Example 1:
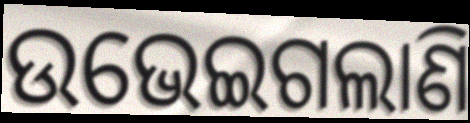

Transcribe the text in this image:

ଉଭେଇଗଲାଣି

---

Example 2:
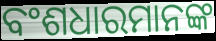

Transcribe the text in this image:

ବଂଶଧାରମାନଙ୍କ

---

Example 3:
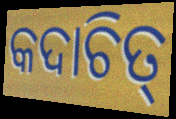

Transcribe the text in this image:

କଦାଚିତ୍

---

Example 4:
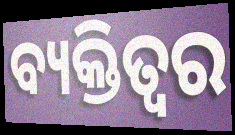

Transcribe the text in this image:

ବ୍ୟକ୍ତିତ୍ବର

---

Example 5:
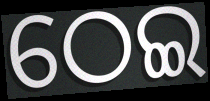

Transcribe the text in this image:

ଠେଇ